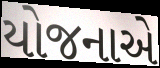
યોજનાએ